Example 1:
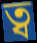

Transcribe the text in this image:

ত্ব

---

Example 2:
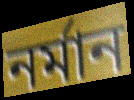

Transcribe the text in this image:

নর্মান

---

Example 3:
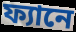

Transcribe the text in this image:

ফ্যানে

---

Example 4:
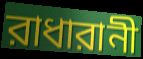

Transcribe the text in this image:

রাধারানী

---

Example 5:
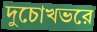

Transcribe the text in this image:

দুচোখভরে